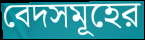
বেদসমূহের